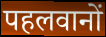
पहलवानों